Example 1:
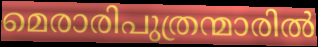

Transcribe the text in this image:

മെരാരിപുത്രന്മാരിൽ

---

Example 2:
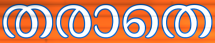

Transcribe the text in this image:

തരാതെ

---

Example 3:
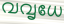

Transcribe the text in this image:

വവൃധേ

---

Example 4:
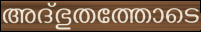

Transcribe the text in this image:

അദ്ഭുതത്തോടെ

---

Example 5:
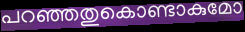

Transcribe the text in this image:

പറഞ്ഞതുകൊണ്ടാകുമോ